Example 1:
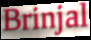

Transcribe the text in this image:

Brinjal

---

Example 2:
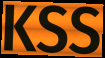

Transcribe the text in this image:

KSS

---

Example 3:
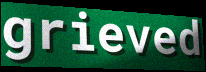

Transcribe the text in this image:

grieved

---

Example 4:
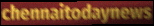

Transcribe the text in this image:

chennaitodaynews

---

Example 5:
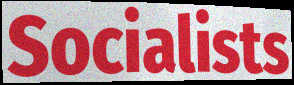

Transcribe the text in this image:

Socialists